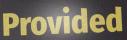
Provided